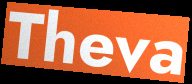
Theva